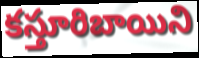
కస్తూరిబాయిని